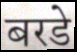
बरडे